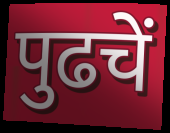
पुढचें